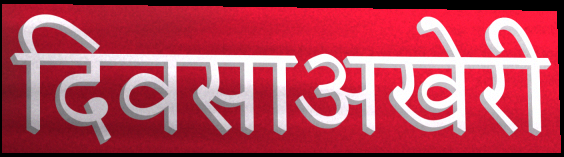
दिवसाअखेरी